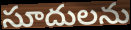
సూదులను